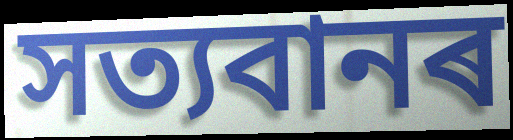
সত্যবানৰ